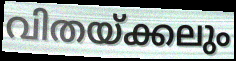
വിതയ്ക്കലും